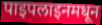
पाइपलाइनमधून